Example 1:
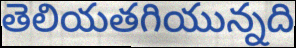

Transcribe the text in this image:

తెలియతగియున్నది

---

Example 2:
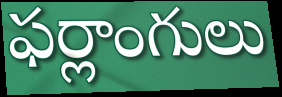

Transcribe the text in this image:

ఫర్లాంగులు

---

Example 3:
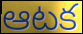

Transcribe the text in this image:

ఆటక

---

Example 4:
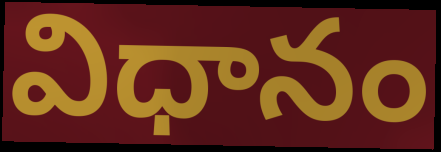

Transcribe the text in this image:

విధానం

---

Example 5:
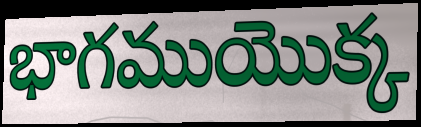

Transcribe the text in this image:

భాగముయొక్క